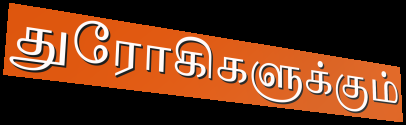
துரோகிகளுக்கும்